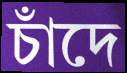
চাঁদে